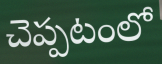
చెప్పటంలో